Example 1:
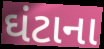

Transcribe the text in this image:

ઘંટાના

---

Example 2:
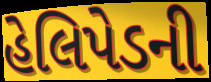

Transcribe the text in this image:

હેલિપેડની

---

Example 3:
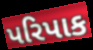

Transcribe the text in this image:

પરિપાક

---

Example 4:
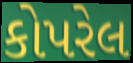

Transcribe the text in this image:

કોપરેલ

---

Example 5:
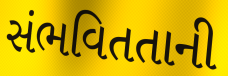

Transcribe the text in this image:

સંભવિતતાની